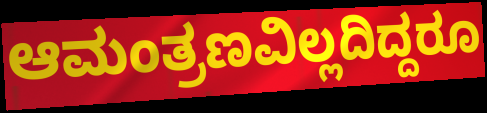
ಆಮಂತ್ರಣವಿಲ್ಲದಿದ್ದರೂ